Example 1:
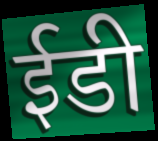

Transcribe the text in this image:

ईडी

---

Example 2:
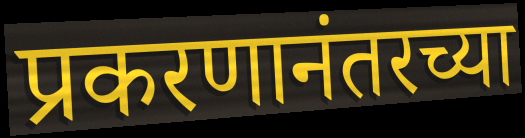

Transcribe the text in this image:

प्रकरणानंतरच्या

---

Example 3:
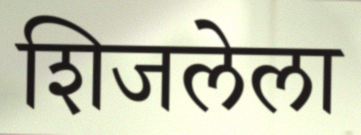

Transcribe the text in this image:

शिजलेला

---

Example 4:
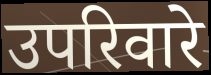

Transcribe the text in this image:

उपरिवारे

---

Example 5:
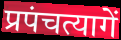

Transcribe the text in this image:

प्रपंचत्यागें